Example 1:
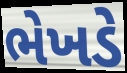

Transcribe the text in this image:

ભેખડે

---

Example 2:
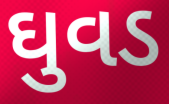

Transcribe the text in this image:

ઘુવડ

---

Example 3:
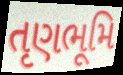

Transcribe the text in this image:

તૃણભૂમિ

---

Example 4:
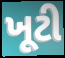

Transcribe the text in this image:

ખૂટી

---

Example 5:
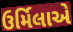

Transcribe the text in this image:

ઉર્મિલાએ